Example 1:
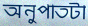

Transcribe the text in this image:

অনুপাতটা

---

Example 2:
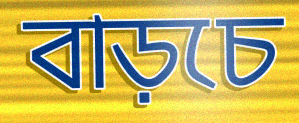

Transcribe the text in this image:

বাড়চে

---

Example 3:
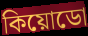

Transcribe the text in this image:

কিয়োডো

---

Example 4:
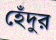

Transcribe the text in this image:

হেঁদুর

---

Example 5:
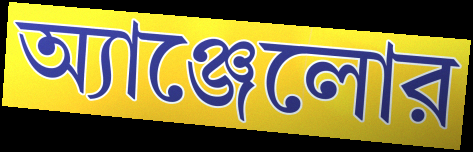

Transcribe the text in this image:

অ্যাঞ্জেলোর